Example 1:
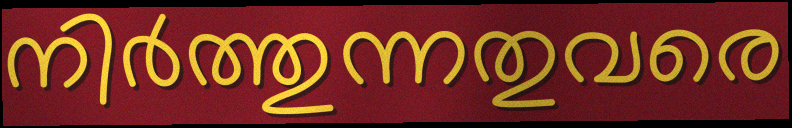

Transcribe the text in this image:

നിർത്തുന്നതുവരെ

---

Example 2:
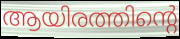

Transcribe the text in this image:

ആയിരത്തിന്റെ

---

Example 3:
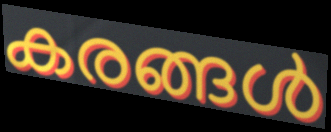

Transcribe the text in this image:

കരങ്ങൾ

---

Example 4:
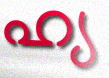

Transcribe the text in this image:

ഹ്യ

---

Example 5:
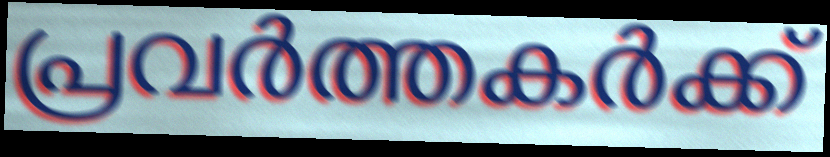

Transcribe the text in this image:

പ്രവർത്തകർക്ക്